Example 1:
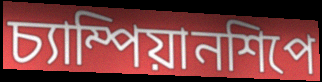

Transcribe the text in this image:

চ্যাম্পিয়ানশিপে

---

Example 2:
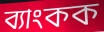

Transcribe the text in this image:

ব্যাংকক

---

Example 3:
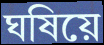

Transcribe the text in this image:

ঘষিয়ে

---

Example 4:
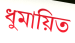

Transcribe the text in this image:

ধুমায়িত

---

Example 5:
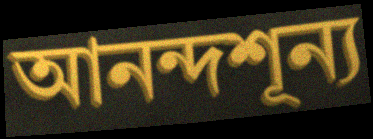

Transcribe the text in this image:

আনন্দশূন্য